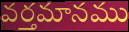
వర్తమానము